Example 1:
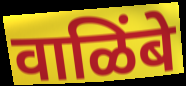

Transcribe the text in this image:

वाळिंबे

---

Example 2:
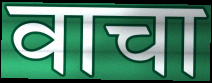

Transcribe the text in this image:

वाचा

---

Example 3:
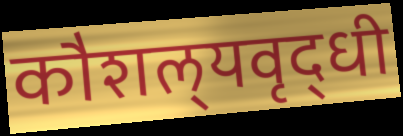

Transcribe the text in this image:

कौशल्यवृद्धी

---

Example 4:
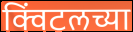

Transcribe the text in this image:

क्विंटलच्या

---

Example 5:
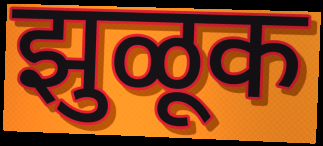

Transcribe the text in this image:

झुळूक